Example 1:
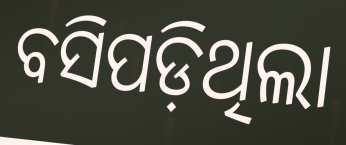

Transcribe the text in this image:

ବସିପଡ଼ିଥିଲା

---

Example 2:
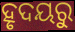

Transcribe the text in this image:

ହୃଦୟରୁ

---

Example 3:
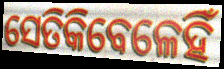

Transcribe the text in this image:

ସେତିକିବେଳେହିଁ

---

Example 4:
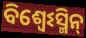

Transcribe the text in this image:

ବିଶ୍ଵେଽସ୍ମିନ୍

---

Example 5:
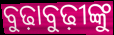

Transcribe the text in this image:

ବୁଢ଼ାବୁଢ଼ୀଙ୍କୁ